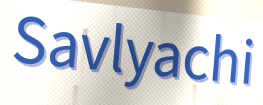
Savlyachi